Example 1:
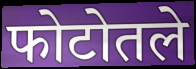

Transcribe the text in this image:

फोटोतले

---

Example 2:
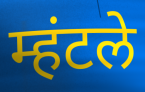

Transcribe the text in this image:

म्हंटले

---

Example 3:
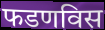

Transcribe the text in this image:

फडणविस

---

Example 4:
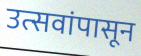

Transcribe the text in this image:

उत्सवांपासून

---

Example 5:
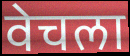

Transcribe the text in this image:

वेचला